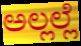
ಅಲ್ಲಲ್ಲೆ